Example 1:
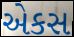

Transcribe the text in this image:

એકસ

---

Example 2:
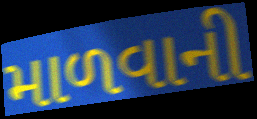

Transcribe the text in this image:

માળવાની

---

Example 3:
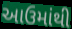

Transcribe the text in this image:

આઉમાંથી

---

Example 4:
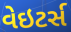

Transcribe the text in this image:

વેઇટર્સ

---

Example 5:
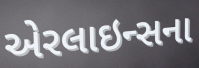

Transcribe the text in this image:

એરલાઇન્સના